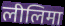
लीलिमा